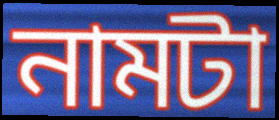
নামটা